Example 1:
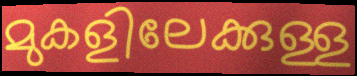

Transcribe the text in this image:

മുകളിലേക്കുള്ള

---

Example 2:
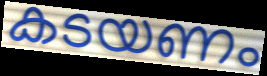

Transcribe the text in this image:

കടയണം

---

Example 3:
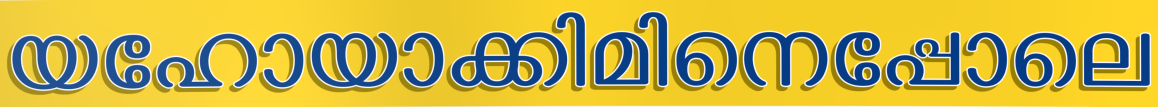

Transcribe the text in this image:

യഹോയാക്കിമിനെപ്പോലെ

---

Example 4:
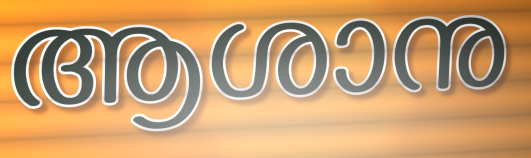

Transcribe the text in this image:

ആശാനു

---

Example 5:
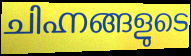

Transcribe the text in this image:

ചിഹ്നങ്ങളുടെ